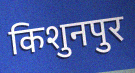
किशुनपुर